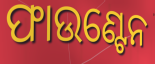
ଫାଉଣ୍ଟେନ